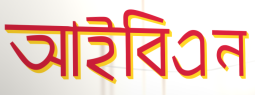
আইবিএন